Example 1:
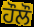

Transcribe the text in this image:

ਹੌਲੌ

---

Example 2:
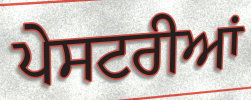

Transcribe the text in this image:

ਪੇਸਟਰੀਆਂ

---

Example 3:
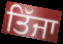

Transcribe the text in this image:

ਤਿੱਜਾ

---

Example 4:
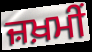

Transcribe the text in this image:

ਜ਼ਖ਼ਮੀਂ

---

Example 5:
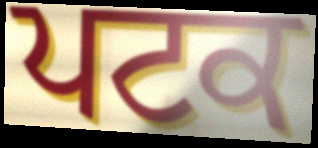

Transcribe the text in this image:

ਪਟਕ